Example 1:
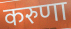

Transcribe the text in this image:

करुणा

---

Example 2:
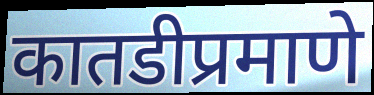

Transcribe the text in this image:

कातडीप्रमाणे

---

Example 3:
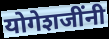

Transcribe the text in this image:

योगेशजींनी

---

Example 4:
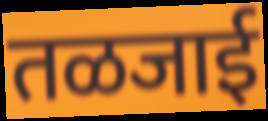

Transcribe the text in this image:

तळजाई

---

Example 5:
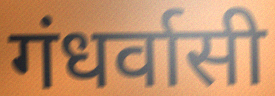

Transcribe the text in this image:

गंधर्वासी